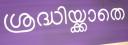
ശ്രദ്ധിയ്ക്കാതെ